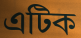
এটিক